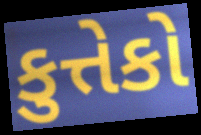
કુત્તેકો